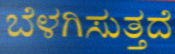
ಬೆಳಗಿಸುತ್ತದೆ